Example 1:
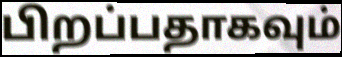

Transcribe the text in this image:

பிறப்பதாகவும்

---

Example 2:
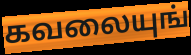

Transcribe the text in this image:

கவலையுங்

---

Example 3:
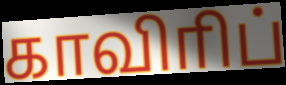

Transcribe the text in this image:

காவிரிப்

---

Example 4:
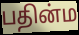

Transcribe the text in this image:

பதின்ம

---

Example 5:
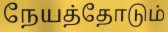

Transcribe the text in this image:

நேயத்தோடும்